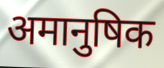
अमानुषिक